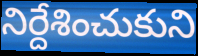
నిర్దేశించుకుని